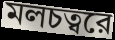
মলচত্বরে